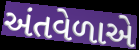
અંતવેળાએ